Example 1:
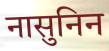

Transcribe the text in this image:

नासुनिन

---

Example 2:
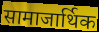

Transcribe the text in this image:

सामाजार्थिक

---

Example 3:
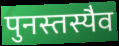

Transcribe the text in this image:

पुनस्तस्यैव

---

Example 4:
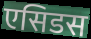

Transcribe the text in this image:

एसिडस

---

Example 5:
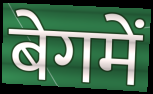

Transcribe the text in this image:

बेगमें